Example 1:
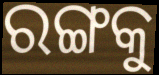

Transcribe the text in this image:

ରଙ୍ଗକୁ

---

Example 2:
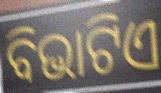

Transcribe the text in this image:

ବିଭାଟିଏ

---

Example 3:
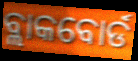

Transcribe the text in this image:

ବ୍ଲାକବୋର୍ଡ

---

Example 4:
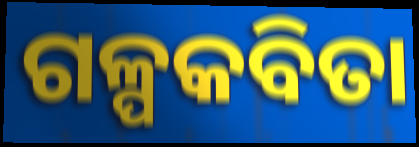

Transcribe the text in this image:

ଗଳ୍ପକବିତା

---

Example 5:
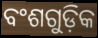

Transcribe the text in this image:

ବଂଶଗୁଡ଼ିକ